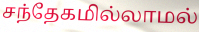
சந்தேகமில்லாமல்